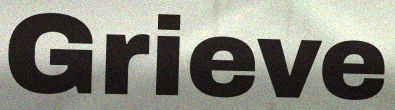
Grieve